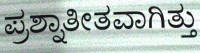
ಪ್ರಶ್ನಾತೀತವಾಗಿತ್ತು